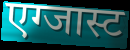
एग्जास्ट